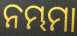
ନମ୍ଭମା